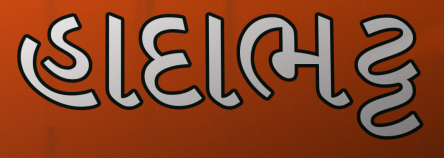
હાદાભટ્ટ